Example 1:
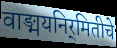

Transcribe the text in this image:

वाङ्मयनिर्मितीचे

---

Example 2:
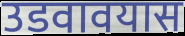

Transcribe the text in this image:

उडवावयास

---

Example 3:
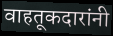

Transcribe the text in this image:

वाहतूकदारांनी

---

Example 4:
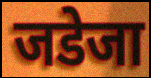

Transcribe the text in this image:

जडेजा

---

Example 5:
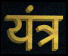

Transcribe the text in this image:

यंत्र